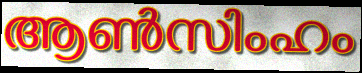
ആൺസിംഹം